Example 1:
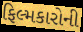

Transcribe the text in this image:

ફિલ્મકારોની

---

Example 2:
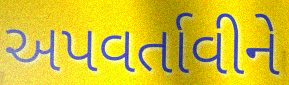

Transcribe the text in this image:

અપવર્તાવીને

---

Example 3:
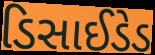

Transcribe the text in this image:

ડિસાઈડેડ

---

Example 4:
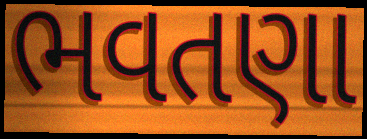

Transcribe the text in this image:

ભવતણા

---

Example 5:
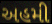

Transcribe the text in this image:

અહમી